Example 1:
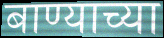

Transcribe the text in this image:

बाण्याच्या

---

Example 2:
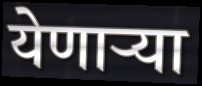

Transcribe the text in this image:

येणार्‍या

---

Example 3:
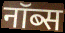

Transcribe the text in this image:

नॉब्स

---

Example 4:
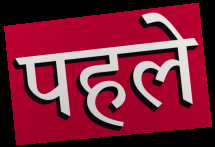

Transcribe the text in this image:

पहले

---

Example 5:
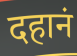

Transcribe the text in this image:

दहानं